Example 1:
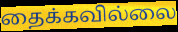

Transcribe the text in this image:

தைக்கவில்லை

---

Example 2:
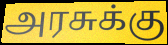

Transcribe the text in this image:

அரசுக்கு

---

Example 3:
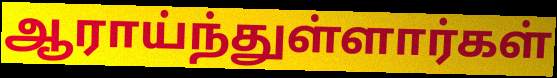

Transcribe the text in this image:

ஆராய்ந்துள்ளார்கள்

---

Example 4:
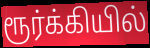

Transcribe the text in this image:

ரூர்க்கியில்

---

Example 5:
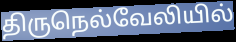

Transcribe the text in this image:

திருநெல்வேலியில்